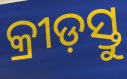
କ୍ରୀଡ଼ସ୍ତୁ